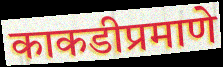
काकडीप्रमाणे